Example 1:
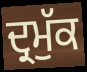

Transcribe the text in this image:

ਦ੍ਰਮੁੱਕ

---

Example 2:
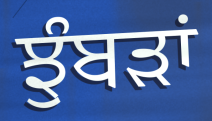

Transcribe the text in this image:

ਝੁੰਬੜਾਂ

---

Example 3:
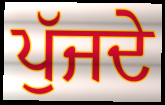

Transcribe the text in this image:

ਪੁੱਜਦੇ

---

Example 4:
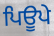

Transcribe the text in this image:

ਪਿਊਪੇ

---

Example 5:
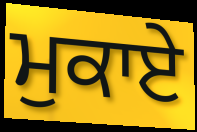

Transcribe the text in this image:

ਮੁਕਾਏ